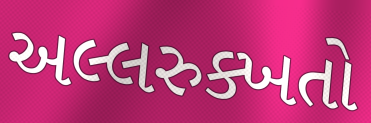
અલ્લરુક્ખતો